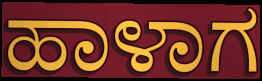
ಹಾಳಾಗ